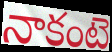
నాకంటె